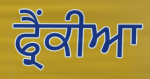
ਫ੍ਰੈਂਕੀਆ